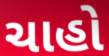
ચાહો